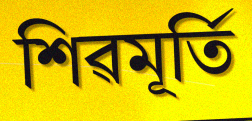
শিৱমূৰ্তি